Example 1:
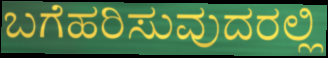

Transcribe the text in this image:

ಬಗೆಹರಿಸುವುದರಲ್ಲಿ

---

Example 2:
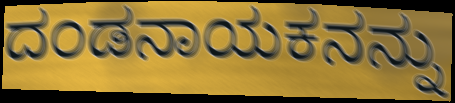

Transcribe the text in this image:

ದಂಡನಾಯಕನನ್ನು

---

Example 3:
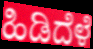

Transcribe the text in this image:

ಹಿಡಿದೆಳೆ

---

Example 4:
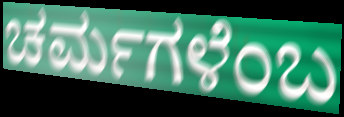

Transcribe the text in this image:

ಚರ್ಮಗಳೆಂಬ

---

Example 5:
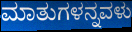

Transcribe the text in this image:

ಮಾತುಗಳನ್ನವಳು